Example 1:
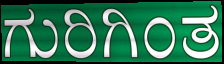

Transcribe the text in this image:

ಗುರಿಗಿಂತ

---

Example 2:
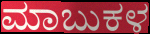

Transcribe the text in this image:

ಮಾಬುಕಳ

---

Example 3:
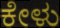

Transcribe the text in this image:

ಕೇಳು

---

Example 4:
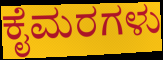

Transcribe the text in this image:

ಕೈಮರಗಳು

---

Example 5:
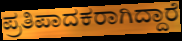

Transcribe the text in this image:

ಪ್ರತಿಪಾದಕರಾಗಿದ್ದಾರೆ